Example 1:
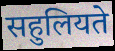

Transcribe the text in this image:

सहुलियते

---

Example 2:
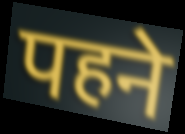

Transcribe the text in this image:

पहने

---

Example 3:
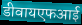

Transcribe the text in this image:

डीवायएफआई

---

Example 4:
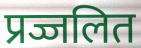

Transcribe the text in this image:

प्रज्जलित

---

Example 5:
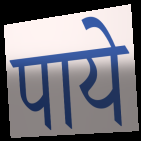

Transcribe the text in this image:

पाये